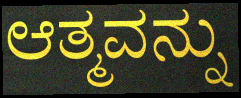
ಆತ್ಮವನ್ನು